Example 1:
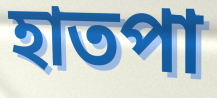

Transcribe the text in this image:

হাতপা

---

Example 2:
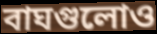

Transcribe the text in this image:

বাঘগুলোও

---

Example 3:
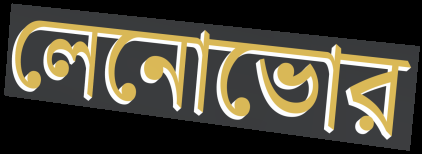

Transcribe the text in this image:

লেনোভোর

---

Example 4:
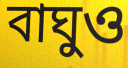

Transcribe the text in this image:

বাঘুও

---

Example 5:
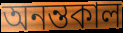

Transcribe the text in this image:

অনন্তকাল